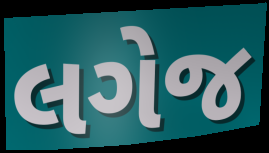
લગેજ